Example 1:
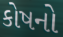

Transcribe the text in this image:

કોષનો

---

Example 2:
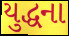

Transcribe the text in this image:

યુદ્ધના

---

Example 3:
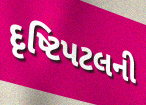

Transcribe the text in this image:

દૃષ્ટિપટલની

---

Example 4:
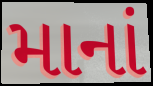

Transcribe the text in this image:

માનાં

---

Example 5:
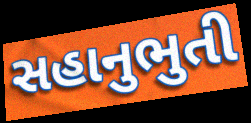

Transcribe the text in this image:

સહાનુભુતી